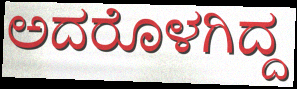
ಅದರೊಳಗಿದ್ದ